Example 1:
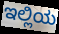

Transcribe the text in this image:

ಇಲ್ಲಿಯ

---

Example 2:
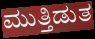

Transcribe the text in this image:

ಮುತ್ತಿಡುತ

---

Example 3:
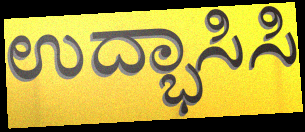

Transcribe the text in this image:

ಉದ್ಭಾಸಿಸಿ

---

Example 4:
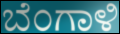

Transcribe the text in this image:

ಬೆಂಗಾಳಿ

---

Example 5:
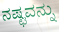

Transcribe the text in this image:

ನಷ್ಟವನ್ನು